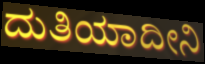
ದುತಿಯಾದೀನಿ